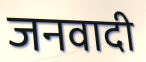
जनवादी